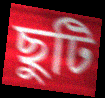
ছুটি